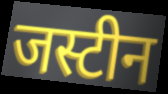
जस्टीन